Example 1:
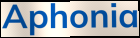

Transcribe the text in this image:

Aphonia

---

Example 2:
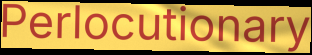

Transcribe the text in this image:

Perlocutionary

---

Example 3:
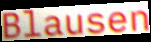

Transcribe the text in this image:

Blausen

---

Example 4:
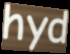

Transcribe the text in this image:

hyd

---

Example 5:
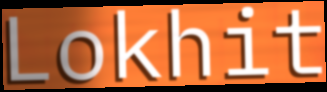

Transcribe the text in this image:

Lokhit